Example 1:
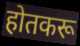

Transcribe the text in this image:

होतकरू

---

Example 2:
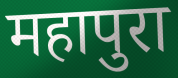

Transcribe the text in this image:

महापुरा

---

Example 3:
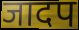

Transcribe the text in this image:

जादप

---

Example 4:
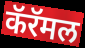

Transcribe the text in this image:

कॅरॅमल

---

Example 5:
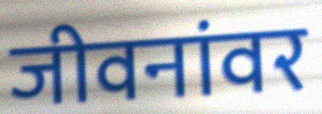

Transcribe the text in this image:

जीवनांवर